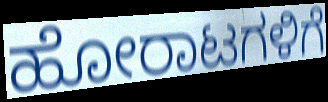
ಹೋರಾಟಗಳಿಗೆ